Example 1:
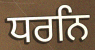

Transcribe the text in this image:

ਧਰਨਿ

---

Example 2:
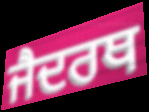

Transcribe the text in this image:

ਜੈਦਰਥ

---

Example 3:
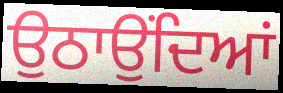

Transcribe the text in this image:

ਉਠਾਉਂਦਿਆਂ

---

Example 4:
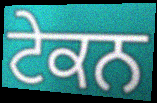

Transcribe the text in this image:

ਟੇਕਨ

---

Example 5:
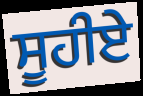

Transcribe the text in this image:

ਸੂਹੀਏ